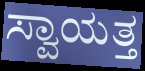
ಸ್ವಾಯತ್ತ